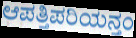
ಆಪತ್ತಿಪರಿಯನ್ತಂ